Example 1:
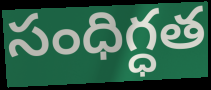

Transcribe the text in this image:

సంధిగ్ధత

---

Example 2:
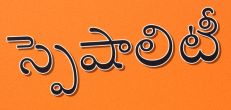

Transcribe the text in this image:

స్పెషాలిటీ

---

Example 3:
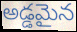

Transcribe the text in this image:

అడ్డమైన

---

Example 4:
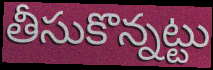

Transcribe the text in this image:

తీసుకొన్నట్టు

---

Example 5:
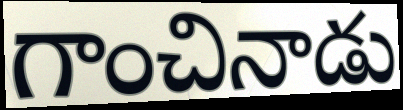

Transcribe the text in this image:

గాంచినాడు